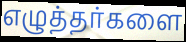
எழுத்தர்களை